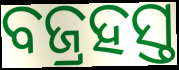
ବଜ୍ରହସ୍ତ